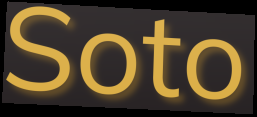
Soto